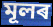
মূলৰ